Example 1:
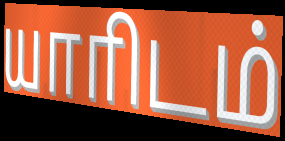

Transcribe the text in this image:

யாரிடம்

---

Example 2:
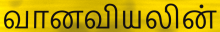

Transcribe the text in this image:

வானவியலின்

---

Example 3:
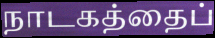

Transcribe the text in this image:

நாடகத்தைப்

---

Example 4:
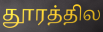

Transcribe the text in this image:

தூரத்தில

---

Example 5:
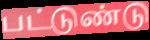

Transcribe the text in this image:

பட்டுண்டு